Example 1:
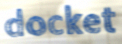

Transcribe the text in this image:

docket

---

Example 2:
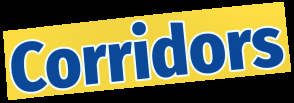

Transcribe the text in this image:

Corridors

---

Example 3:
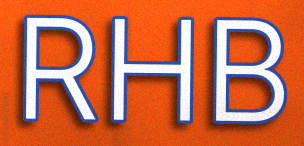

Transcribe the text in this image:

RHB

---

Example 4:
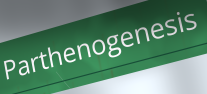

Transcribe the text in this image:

Parthenogenesis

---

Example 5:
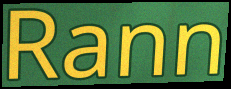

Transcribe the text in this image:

Rann